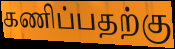
கணிப்பதற்கு